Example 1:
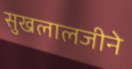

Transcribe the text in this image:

सुखलालजीने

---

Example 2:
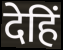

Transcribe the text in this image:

देहिं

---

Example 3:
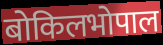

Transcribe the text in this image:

बोकिलभोपाल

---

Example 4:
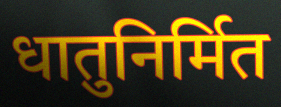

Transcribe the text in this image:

धातुनिर्मित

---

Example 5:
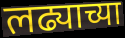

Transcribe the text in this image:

लढ्याच्या